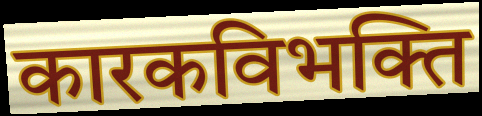
कारकविभक्ति